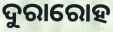
ଦୁରାରୋହ